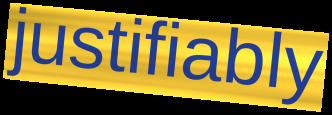
justifiably